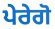
ਪੇਰੇਗੋ